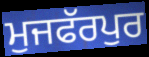
ਮੁਜਫੱਰਪੁਰ